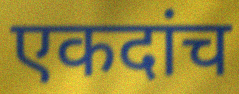
एकदांच